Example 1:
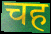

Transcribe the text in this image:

चह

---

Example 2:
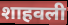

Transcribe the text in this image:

शाहवली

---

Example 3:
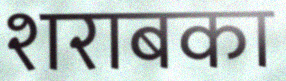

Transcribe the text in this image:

शराबका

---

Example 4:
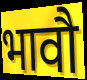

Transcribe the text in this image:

भावौ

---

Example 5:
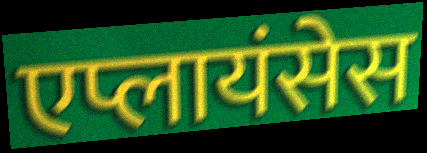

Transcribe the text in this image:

एप्लायंसेस